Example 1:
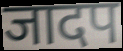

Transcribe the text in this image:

जादप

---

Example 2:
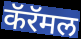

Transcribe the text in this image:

कॅरॅमल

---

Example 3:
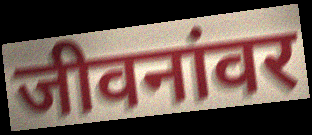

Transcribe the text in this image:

जीवनांवर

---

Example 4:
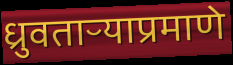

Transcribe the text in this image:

ध्रुवताऱ्याप्रमाणे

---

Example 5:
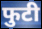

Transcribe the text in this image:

फुटी